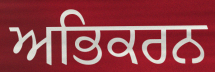
ਅਭਿਕਰਨ